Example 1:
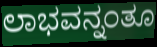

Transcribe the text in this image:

ಲಾಭವನ್ನಂತೂ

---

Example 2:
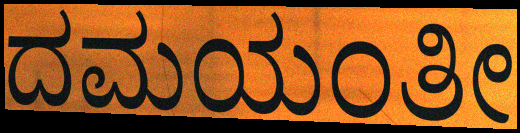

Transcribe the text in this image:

ದಮಯಂತೀ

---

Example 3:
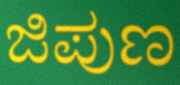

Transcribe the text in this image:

ಜಿಪುಣ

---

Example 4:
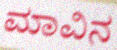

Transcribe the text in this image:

ಮಾವಿನ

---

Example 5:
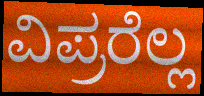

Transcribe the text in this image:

ವಿಪ್ರರೆಲ್ಲ